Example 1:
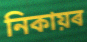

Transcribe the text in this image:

নিকায়ৰ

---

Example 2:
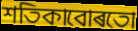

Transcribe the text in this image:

শতিকাবোৰতো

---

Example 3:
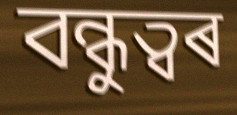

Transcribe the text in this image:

বন্ধুত্বৰ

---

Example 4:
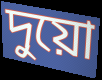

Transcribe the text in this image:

দুয়ো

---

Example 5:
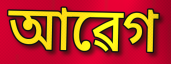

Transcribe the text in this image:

আৱেগ